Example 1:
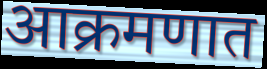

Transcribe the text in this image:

आक्रमणात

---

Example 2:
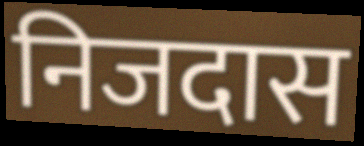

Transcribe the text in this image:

निजदास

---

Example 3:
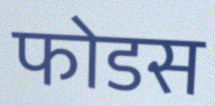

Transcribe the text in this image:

फोडस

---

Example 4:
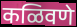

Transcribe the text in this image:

कळिवणे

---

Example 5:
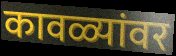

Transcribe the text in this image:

कावळ्यांवर